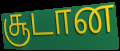
சூடான